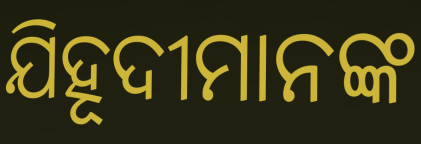
ଯିହୂଦୀମାନଙ୍କ